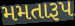
મમતારૂપ